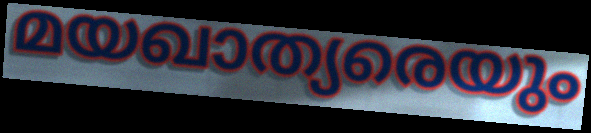
മയഖാത്യരെയും